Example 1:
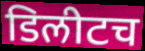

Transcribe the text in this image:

डिलीटच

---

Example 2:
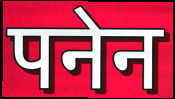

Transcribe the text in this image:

पनेन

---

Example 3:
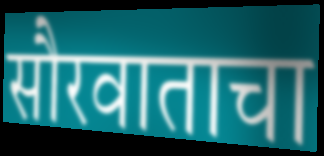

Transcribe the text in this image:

सौरवाताचा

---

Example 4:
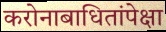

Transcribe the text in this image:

करोनाबाधितांपेक्षा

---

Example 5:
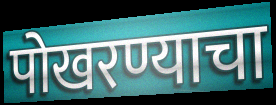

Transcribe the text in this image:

पोखरण्याचा